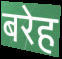
बरेह